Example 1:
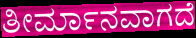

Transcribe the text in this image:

ತೀರ್ಮಾನವಾಗದೆ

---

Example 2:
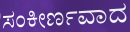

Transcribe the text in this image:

ಸಂಕೀರ್ಣವಾದ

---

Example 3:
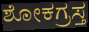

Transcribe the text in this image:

ಶೋಕಗ್ರಸ್ತ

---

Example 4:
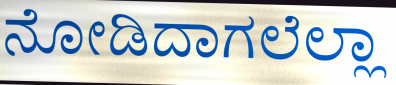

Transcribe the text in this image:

ನೋಡಿದಾಗಲೆಲ್ಲಾ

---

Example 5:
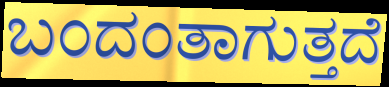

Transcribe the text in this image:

ಬಂದಂತಾಗುತ್ತದೆ